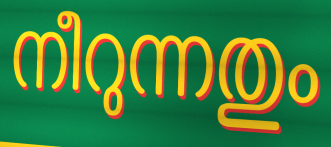
നീറുന്നതും